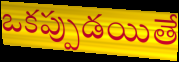
ఒకప్పుడయితే